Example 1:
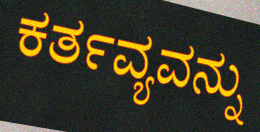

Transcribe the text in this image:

ಕರ್ತವ್ಯವನ್ನು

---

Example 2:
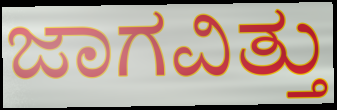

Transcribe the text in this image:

ಜಾಗವಿತ್ತು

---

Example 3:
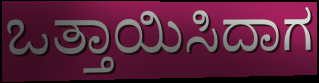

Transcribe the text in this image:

ಒತ್ತಾಯಿಸಿದಾಗ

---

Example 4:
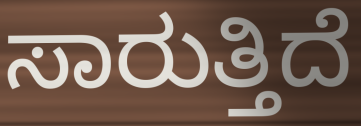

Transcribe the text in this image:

ಸಾರುತ್ತಿದೆ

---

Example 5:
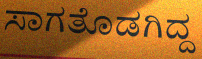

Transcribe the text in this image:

ಸಾಗತೊಡಗಿದ್ದ